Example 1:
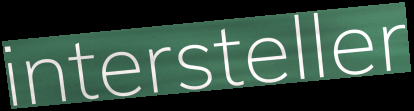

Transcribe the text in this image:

intersteller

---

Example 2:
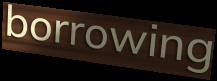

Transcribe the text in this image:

borrowing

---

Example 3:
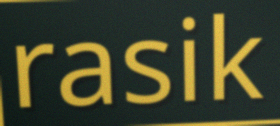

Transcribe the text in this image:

rasik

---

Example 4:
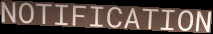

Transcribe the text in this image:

NOTIFICATION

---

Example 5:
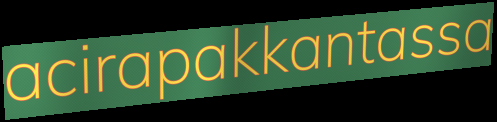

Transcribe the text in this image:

acirapakkantassa